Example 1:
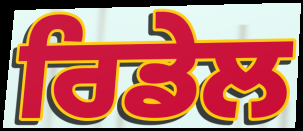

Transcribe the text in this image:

ਰਿਡੇਲ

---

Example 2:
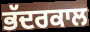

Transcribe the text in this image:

ਭੱਦਰਕਾਲ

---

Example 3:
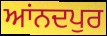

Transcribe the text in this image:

ਆਂਨਦਪੁਰ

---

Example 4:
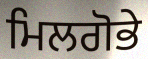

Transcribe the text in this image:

ਮਿਲਗੋਭੇ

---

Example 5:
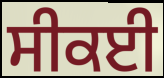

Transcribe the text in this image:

ਸੀਕਈ